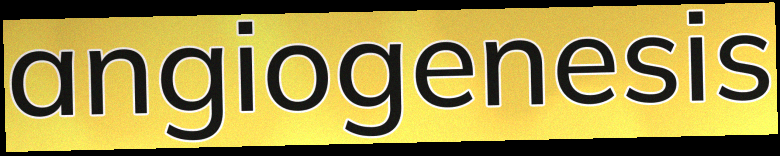
angiogenesis